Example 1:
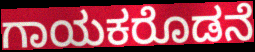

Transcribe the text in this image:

ಗಾಯಕರೊಡನೆ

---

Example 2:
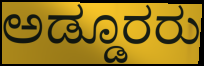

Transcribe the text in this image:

ಅಡ್ಡೂರರು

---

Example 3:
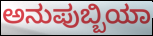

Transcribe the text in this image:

ಅನುಪುಬ್ಬಿಯಾ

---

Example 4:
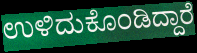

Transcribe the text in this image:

ಉಳಿದುಕೊಂಡಿದ್ದಾರೆ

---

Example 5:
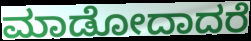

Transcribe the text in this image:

ಮಾಡೋದಾದರೆ